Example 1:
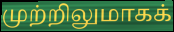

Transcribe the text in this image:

முற்றிலுமாகக்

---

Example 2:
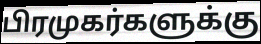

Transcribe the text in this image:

பிரமுகர்களுக்கு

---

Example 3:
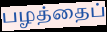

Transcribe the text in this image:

பழத்தைப்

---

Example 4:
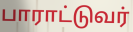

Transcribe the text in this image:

பாராட்டுவர்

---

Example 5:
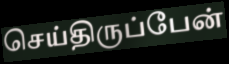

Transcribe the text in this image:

செய்திருப்பேன்